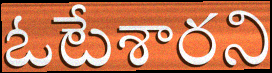
ఓటేశారని